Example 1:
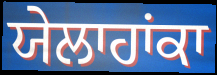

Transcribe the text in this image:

ਯੇਲਾਹਾਂਕਾ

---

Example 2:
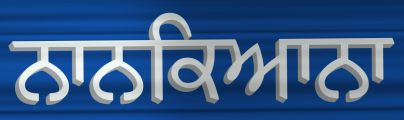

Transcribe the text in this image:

ਨਾਨਕਿਆਨਾ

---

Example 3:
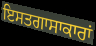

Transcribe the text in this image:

ਇਸਤਗਾਸਾਕਾਰਾਂ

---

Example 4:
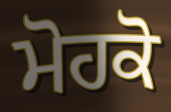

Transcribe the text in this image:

ਮੋਹਕੋ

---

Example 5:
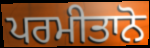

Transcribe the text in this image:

ਪਰਮੀਤਾਨੋ